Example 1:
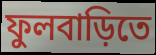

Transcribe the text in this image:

ফুলবাড়িতে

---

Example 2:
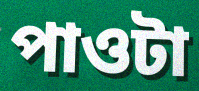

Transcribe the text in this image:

পাওটা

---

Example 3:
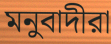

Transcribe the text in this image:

মনুবাদীরা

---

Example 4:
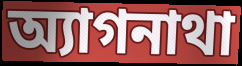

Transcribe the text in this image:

অ্যাগনাথা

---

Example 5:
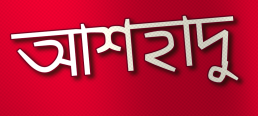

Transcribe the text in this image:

আশহাদু